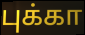
புக்கா